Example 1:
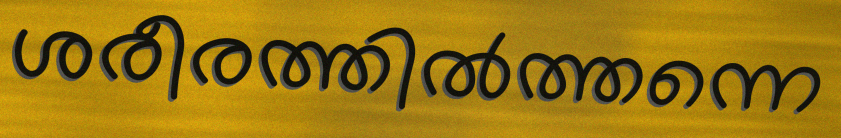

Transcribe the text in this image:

ശരീരത്തിൽത്തന്നെ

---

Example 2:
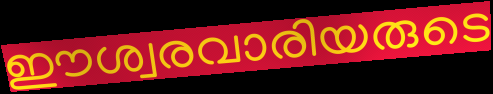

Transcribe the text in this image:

ഈശ്വരവാരിയരുടെ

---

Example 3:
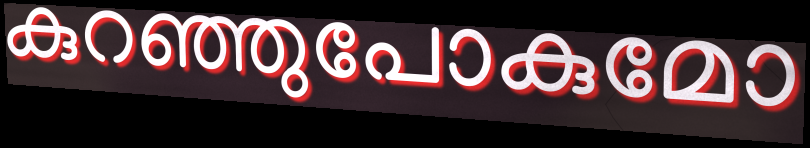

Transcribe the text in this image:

കുറഞ്ഞുപോകുമോ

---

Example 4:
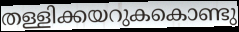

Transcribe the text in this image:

തള്ളിക്കയറുകകൊണ്ടു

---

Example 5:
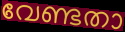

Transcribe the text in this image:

വേണ്ടതാ